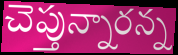
చెప్తున్నారన్న